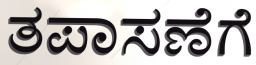
ತಪಾಸಣೆಗೆ